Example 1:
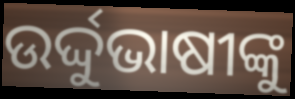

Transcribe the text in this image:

ଉର୍ଦ୍ଦୁଭାଷୀଙ୍କୁ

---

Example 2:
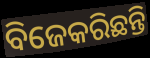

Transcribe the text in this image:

ବିଜେକରିଛନ୍ତି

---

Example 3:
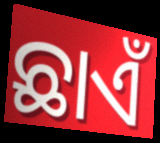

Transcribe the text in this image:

ଛାଏଁ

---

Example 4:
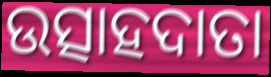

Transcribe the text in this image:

ଉତ୍ସାହଦାତା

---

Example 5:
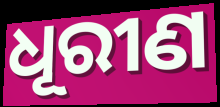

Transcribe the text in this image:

ଧୂରୀଣ